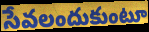
సేవలందుకుంటూ